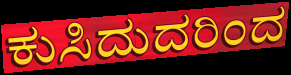
ಕುಸಿದುದರಿಂದ